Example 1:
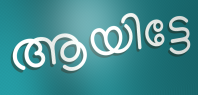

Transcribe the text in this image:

ആയിട്ടേ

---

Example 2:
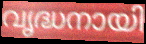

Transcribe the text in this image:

വൃദ്ധനായി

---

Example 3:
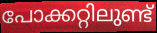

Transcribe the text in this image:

പോക്കറ്റിലുണ്ട്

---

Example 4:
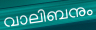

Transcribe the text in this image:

വാലിബനും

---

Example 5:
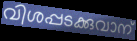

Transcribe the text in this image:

വിശപ്പടക്കുവാന്